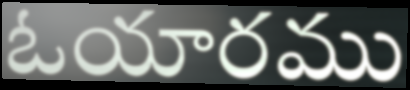
ఓయారము